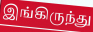
இங்கிருந்து